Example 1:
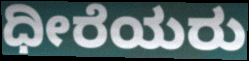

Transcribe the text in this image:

ಧೀರೆಯರು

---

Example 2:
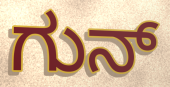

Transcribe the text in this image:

ಗುನ್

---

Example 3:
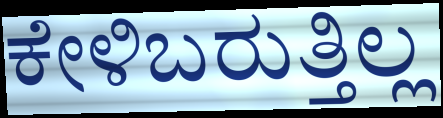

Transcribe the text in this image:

ಕೇಳಿಬರುತ್ತಿಲ್ಲ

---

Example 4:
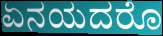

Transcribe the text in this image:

ಏನಯದರೊ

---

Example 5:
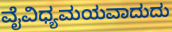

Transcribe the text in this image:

ವೈವಿಧ್ಯಮಯವಾದುದು